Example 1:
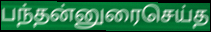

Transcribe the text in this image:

பந்தன்னுரைசெய்த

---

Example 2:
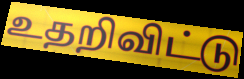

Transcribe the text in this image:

உதறிவிட்டு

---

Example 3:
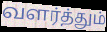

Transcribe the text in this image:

வளர்த்தும்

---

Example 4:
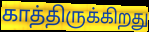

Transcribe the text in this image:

காத்திருக்கிறது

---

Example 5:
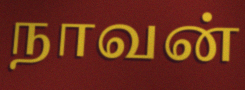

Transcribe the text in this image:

நாவன்